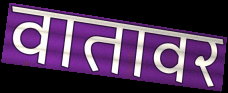
वातावर